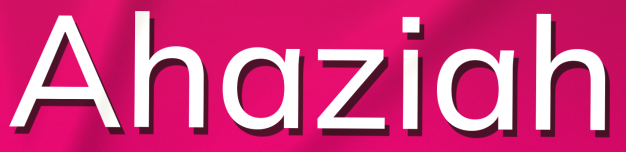
Ahaziah